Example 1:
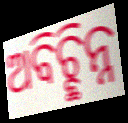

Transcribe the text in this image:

ଅବିଚ୍ଛିନ୍ନ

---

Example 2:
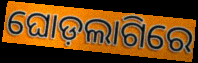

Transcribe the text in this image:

ଘୋଡ଼ଲାଗିରେ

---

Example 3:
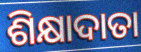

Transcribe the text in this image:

ଶିକ୍ଷାଦାତା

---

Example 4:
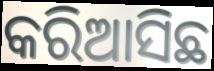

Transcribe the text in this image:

କରିଆସିଛ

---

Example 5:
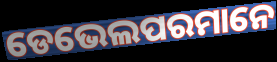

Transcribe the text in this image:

ଡେଭେଲପରମାନେ